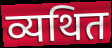
व्यथित